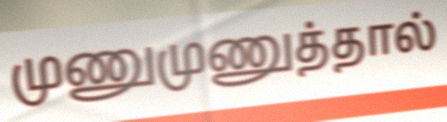
முணுமுணுத்தால்